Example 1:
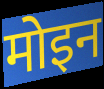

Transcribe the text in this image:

मोइन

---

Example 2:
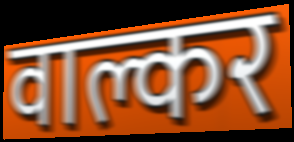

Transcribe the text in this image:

वाल्कर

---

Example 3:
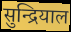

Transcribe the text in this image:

सुन्द्रियाल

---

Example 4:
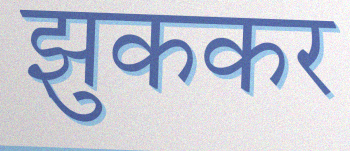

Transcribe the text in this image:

झुककर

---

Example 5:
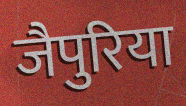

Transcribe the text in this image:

जैपुरिया